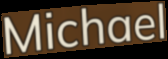
Michael